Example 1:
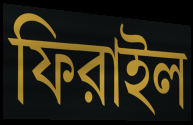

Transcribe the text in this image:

ফিরাইল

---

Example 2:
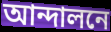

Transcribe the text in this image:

আন্দালনে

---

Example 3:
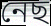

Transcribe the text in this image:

নেছ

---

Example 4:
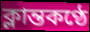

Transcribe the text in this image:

ক্লান্তকণ্ঠে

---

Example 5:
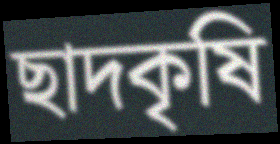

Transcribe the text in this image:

ছাদকৃষি